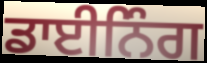
ਡਾਈਨਿੰਗ